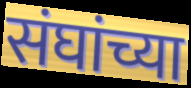
संघांच्या